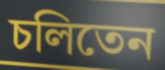
চলিতেন